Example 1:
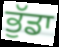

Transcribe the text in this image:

ਭੁੱਡਾ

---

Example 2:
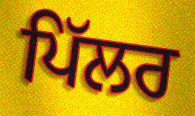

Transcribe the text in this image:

ਪਿੱਲਰ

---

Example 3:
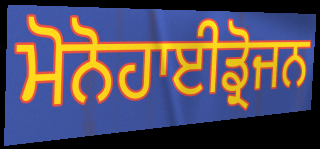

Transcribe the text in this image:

ਮੋਨੋਹਾਈਡ੍ਰੋਜਨ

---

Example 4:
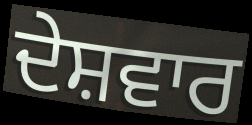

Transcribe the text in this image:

ਦੇਸ਼ਵਾਰ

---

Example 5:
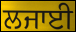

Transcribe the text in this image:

ਲਜਾਈ